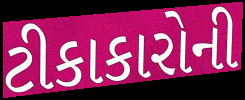
ટીકાકારોની